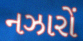
નઝારોં